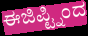
ಈಜಿಪ್ಟ್ನಿಂದ